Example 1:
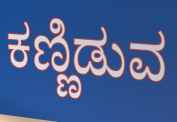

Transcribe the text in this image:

ಕಣ್ಣಿಡುವ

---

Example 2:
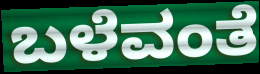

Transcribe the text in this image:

ಬಳೆವಂತೆ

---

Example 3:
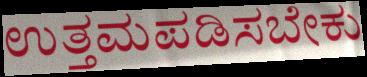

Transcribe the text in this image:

ಉತ್ತಮಪಡಿಸಬೇಕು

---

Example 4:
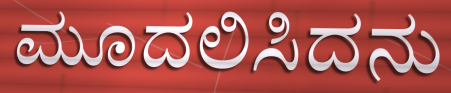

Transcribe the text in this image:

ಮೂದಲಿಸಿದನು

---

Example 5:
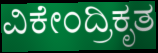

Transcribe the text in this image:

ವಿಕೇಂದ್ರಿಕೃತ